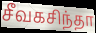
சீவகசிந்தா